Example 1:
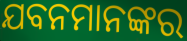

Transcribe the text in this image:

ଯବନମାନଙ୍କର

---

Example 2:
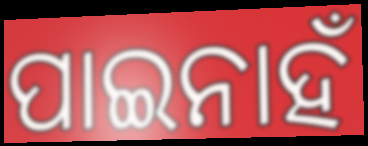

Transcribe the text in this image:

ପାଇନାହଁ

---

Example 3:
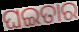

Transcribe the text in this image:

ଘଇତାର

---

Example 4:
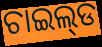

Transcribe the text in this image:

ଚାଇଲ୍‌ଡ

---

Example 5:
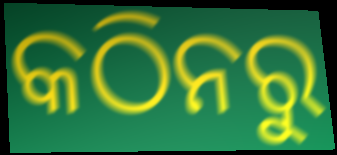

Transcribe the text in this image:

କଠିନରୁ